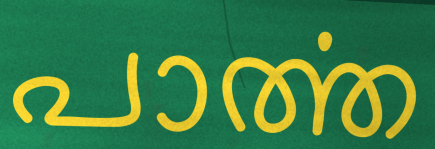
പാൎത്ത